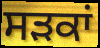
ਸਡ਼ਕਾਂ